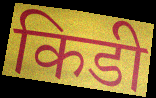
किडी